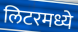
लिटरमध्ये